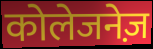
कोलेजनेज़